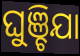
ଘୁଞ୍ଚିଯା